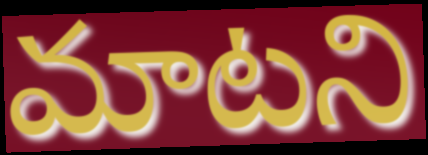
మాటని